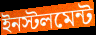
ইনস্টলমেন্ট